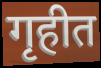
गृहीत